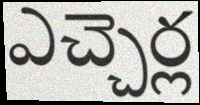
ఎచ్చెర్ల